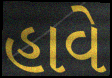
હાવે